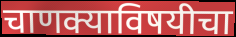
चाणक्याविषयीचा